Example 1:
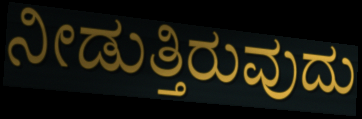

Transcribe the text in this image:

ನೀಡುತ್ತಿರುವುದು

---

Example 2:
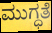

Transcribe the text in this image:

ಮುಗ್ಧತೆ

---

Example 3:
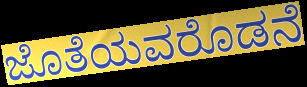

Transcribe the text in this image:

ಜೊತೆಯವರೊಡನೆ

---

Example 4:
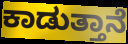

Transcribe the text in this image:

ಕಾಡುತ್ತಾನೆ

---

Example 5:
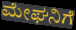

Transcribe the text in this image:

ಮೇಘನಿಗೆ